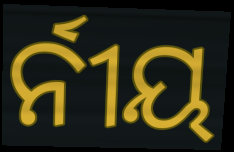
ର୍ନୀୟ